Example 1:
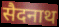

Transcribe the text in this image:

सैदनाथ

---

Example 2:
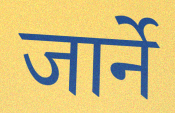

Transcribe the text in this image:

जार्ने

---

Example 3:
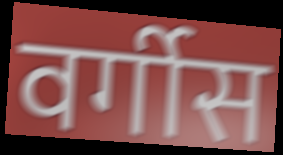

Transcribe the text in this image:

वर्गीस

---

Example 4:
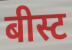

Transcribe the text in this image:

बीस्ट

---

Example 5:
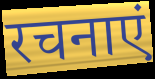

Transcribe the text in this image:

रचनाएं